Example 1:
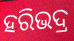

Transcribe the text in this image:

ହରିଭଦ୍ର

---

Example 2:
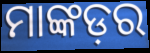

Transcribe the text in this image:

ମାଙ୍କଡ଼ର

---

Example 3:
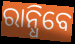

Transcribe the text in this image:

ରାନ୍ଧିବେ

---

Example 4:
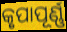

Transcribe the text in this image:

କୃପାପୂର୍ଣ୍ଣ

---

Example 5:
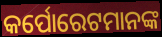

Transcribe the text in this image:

କର୍ପୋରେଟମାନଙ୍କ